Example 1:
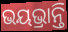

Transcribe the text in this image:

ଭୟଭ୍ରାନ୍ତି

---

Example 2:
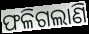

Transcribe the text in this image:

ଫଳିଗଲାଣି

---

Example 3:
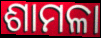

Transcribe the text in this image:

ଶାମଳା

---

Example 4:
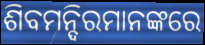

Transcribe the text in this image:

ଶିବମନ୍ଦିରମାନଙ୍କରେ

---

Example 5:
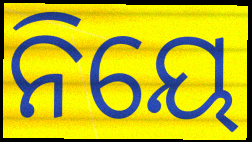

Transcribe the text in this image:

ନିୟେ